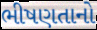
ભીષણતાનો